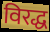
विरद्ध